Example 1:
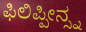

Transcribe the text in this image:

ಫಿಲಿಪ್ಪೀನ್ಸ್ನ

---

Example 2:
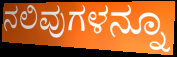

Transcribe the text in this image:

ನಲಿವುಗಳನ್ನೂ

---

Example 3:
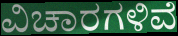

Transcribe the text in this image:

ವಿಚಾರಗಳಿವೆ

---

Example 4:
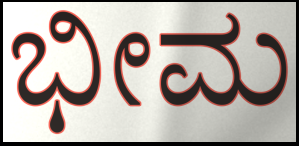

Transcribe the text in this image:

ಭೀಮ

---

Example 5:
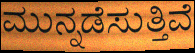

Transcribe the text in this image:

ಮುನ್ನಡೆಸುತ್ತಿವೆ